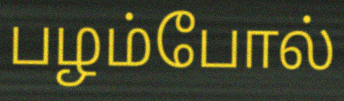
பழம்போல்